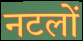
नटलों